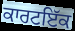
ਕਾਰਟਇੱਕ